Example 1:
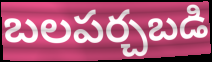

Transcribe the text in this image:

బలపర్చబడి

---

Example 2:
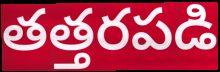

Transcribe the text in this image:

తత్తరపడి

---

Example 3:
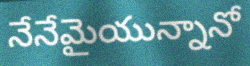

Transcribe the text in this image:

నేనేమైయున్నానో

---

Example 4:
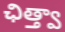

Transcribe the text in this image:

ఛిత్త్వా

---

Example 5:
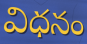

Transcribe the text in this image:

విధనం